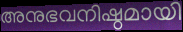
അനുഭവനിഷ്ഠമായി